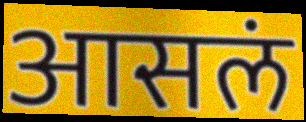
आसलं